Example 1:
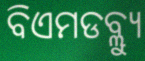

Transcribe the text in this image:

ବିଏମଡବ୍ଲ୍ୟୁ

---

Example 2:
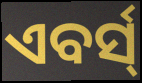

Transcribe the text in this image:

ଏବର୍ସ୍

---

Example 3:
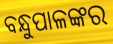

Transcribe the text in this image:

ବନ୍ଧୁପାଳଙ୍କର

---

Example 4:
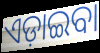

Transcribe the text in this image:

ଏଡ଼ାଇବା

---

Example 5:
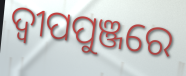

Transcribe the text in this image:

ଦ୍ବୀପପୁଞ୍ଜରେ